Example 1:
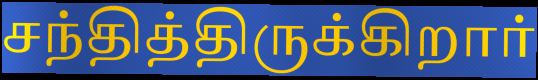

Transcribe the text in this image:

சந்தித்திருக்கிறார்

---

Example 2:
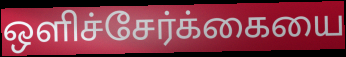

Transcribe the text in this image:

ஒளிச்சேர்க்கையை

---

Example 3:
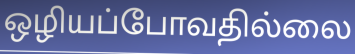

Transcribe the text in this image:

ஒழியப்போவதில்லை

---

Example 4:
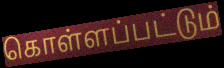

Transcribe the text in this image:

கொள்ளப்பட்டும்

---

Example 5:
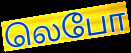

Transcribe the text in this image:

லெபோ